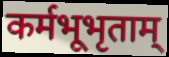
कर्मभूभृताम्